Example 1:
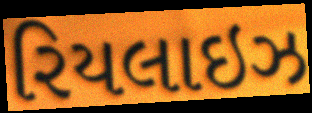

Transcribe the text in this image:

રિયલાઇઝ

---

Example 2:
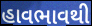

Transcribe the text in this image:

હાવભાવથી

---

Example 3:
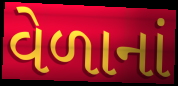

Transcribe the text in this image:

વેળાનાં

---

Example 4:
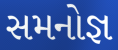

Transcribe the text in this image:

સમનોજ્ઞ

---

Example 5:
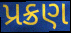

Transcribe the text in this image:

પ્રક્રણ